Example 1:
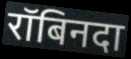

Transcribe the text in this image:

रॉबिनदा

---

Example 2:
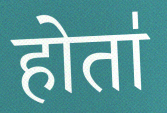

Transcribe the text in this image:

होता॑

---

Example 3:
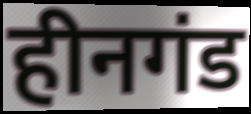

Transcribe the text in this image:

हीनगंड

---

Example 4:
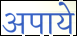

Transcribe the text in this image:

अपाये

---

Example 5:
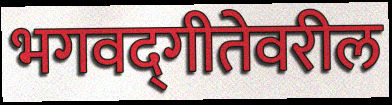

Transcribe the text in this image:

भगवद्‌गीतेवरील